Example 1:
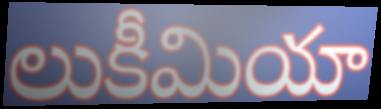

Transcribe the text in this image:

లుకీమియా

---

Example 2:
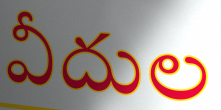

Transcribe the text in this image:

వీదుల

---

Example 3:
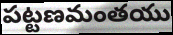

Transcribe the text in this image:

పట్టణమంతయు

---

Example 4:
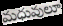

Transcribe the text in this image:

మధువులూ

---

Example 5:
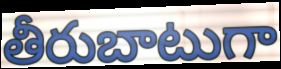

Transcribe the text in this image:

తీరుబాటుగా